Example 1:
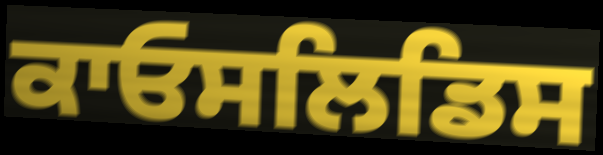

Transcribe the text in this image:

ਕਾਓਸਲਿਡਿਸ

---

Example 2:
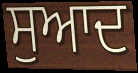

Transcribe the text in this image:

ਸੁਆਦ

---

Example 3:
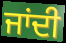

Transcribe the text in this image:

ਜਾਂਦੀ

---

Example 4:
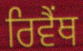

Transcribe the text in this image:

ਰਿਵੈਂਥ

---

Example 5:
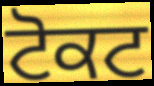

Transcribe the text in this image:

ਟੋਕਟ